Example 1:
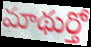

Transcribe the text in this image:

మాథుర్తో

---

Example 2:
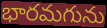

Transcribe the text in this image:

భారమగును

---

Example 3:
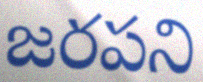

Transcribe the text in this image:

జరపని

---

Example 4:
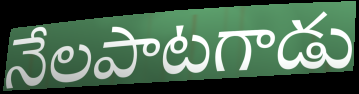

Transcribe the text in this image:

నేలపాటగాడు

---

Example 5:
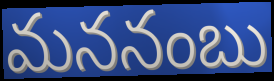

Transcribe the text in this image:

మననంబు